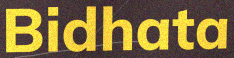
Bidhata